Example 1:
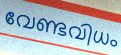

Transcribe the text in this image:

വേണ്ടവിധം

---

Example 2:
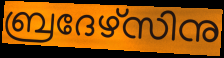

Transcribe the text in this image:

ബ്രദേഴ്സിനു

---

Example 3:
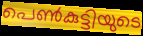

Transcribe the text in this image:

പെൺകുട്ടിയുടെ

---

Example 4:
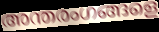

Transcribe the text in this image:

അന്തരംഗങ്ങളെ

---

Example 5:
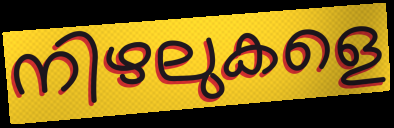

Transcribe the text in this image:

നിഴലുകളെ